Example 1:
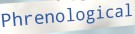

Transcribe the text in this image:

Phrenological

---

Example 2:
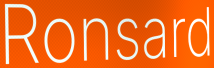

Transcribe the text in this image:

Ronsard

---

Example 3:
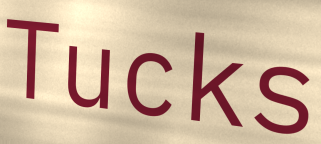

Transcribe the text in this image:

Tucks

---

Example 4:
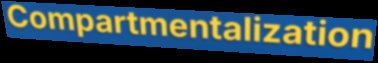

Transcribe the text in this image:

Compartmentalization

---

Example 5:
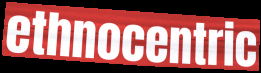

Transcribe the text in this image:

ethnocentric